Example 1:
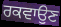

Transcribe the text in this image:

ਰਕਵਾਉਣ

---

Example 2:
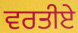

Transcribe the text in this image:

ਵਰਤੀਏ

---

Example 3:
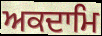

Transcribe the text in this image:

ਅਕਦਾਮਿ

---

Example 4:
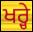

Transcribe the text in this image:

ਖਰ੍ਚੇ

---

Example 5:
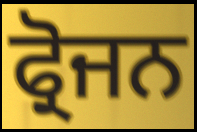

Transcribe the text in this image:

ਫ੍ਰੋਜਨ